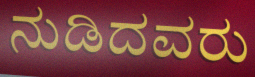
ನುಡಿದವರು